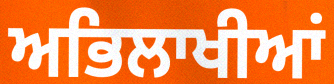
ਅਭਿਲਾਖੀਆਂ